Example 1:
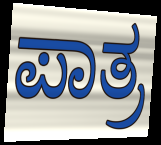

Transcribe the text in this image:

ಪಾತ್ರ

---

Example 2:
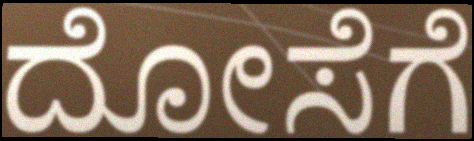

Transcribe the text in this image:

ದೋಸೆಗೆ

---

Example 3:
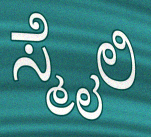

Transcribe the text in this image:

ಸ್ಮೈಲಿ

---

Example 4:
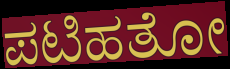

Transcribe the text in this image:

ಪಟಿಹತೋ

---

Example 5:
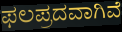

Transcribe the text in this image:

ಫಲಪ್ರದವಾಗಿವೆ